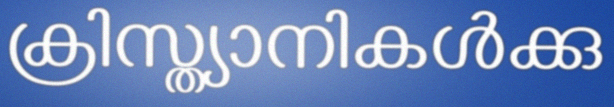
ക്രിസ്ത്യാനികൾക്കു